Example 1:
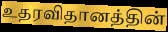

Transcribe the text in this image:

உதரவிதானத்தின்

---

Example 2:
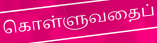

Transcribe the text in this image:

கொள்ளுவதைப்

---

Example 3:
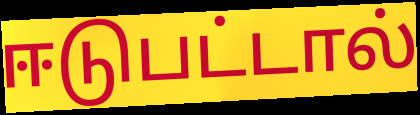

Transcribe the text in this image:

ஈடுபட்டால்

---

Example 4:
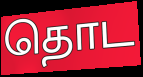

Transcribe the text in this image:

தொட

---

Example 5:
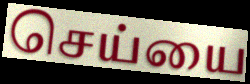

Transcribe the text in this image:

செய்யை